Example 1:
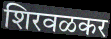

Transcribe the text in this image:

शिरवळकर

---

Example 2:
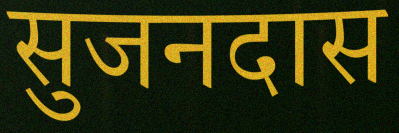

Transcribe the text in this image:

सुजनदास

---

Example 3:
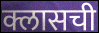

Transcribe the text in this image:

क्लासची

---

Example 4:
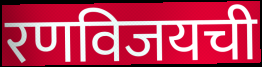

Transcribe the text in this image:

रणविजयची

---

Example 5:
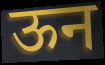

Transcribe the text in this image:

ऊन